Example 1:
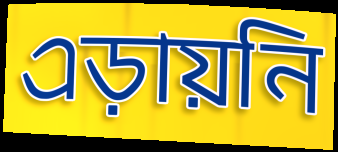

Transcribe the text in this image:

এড়ায়নি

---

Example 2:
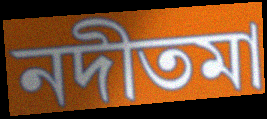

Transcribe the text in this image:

নদীতমা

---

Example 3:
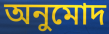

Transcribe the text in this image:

অনুমোদ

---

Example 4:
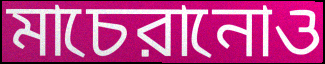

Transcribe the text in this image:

মাচেরানোও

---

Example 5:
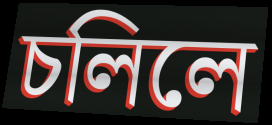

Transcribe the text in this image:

চলিলে